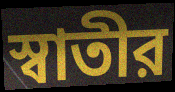
স্বাতীর